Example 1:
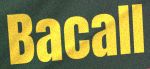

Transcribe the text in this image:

Bacall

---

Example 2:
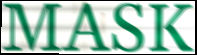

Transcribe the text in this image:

MASK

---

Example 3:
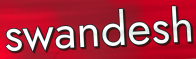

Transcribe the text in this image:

swandesh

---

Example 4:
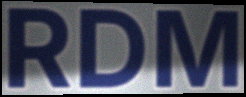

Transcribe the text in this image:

RDM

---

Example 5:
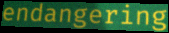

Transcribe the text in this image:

endangering